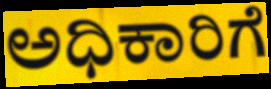
ಅಧಿಕಾರಿಗೆ